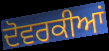
ਦੋਵਰਕੀਆਂ